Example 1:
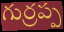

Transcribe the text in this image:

గుర్రప్ప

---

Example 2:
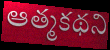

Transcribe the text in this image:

ఆత్మకథని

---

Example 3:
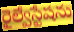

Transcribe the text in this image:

రైల్వేస్టేషను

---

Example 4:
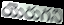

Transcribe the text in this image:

యెరుగని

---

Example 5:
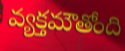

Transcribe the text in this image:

వ్యక్తమౌతోంది